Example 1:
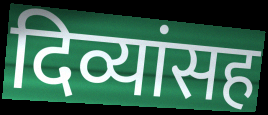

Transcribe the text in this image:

दिव्यांसह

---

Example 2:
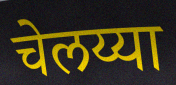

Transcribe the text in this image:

चेलय्या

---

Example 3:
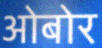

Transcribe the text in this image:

ओबोर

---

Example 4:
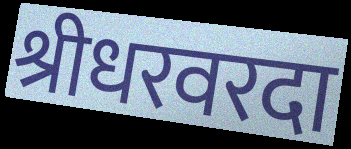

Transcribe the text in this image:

श्रीधरवरदा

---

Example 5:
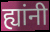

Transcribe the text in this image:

ह्यांनी